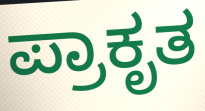
ಪ್ರಾಕೃತ